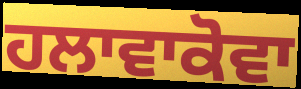
ਹਲਾਵਾਕੋਵਾ